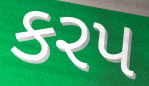
કરપ